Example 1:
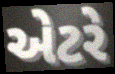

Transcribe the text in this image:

એટરે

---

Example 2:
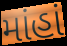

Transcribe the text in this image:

માંહાં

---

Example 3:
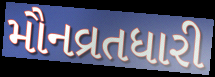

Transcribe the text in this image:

મૌનવ્રતધારી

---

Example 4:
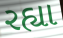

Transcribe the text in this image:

રહ્યા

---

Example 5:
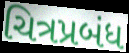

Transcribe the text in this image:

ચિત્રપ્રબંધ